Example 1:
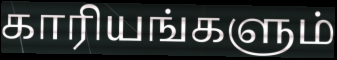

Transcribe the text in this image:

காரியங்களும்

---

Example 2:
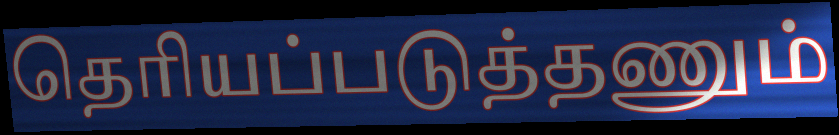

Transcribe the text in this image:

தெரியப்படுத்தணும்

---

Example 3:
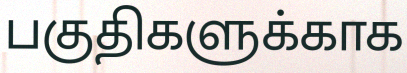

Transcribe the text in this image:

பகுதிகளுக்காக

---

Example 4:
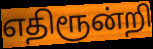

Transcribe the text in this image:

எதிரூன்றி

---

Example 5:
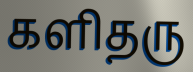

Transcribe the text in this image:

களிதரு